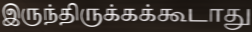
இருந்திருக்கக்கூடாது